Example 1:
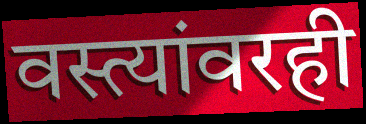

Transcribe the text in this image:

वस्त्यांवरही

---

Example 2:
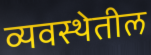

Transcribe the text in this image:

व्यवस्थेतील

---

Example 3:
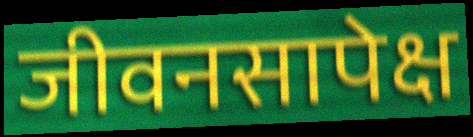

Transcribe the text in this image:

जीवनसापेक्ष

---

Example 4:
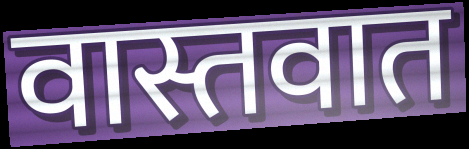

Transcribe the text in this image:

वास्तवात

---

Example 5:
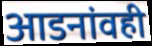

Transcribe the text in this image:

आडनांवही